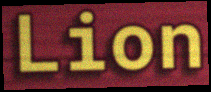
Lion